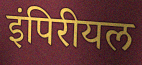
इंपिरीयल